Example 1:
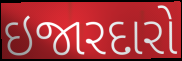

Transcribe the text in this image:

ઇજારદારો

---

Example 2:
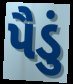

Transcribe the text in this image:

પૈડું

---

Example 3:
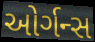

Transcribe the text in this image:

ઓર્ગન્સ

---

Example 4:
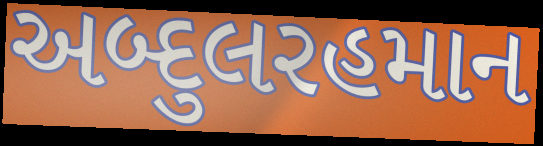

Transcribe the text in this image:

અબ્દુલરહમાન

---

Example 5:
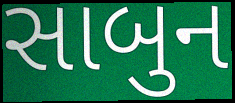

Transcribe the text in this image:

સાબુન